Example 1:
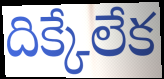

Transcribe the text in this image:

దిక్కేలేక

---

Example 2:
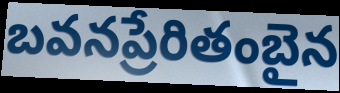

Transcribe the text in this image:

బవనప్రేరితంబైన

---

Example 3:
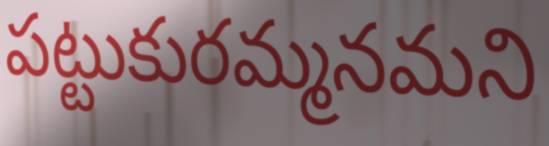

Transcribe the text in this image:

పట్టుకురమ్మనమని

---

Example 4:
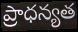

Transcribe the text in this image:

ప్రాధన్యత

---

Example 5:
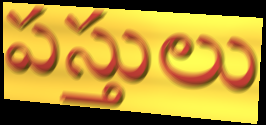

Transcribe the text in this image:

పస్తులు